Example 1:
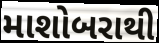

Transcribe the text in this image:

માશોબરાથી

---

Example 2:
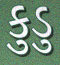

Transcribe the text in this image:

કુડુ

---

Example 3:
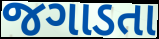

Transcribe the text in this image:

જગાડતા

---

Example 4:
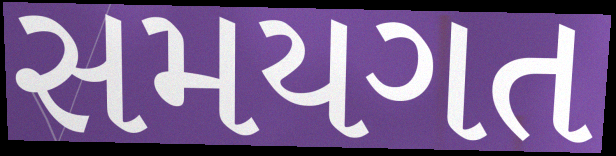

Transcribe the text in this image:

સમયગત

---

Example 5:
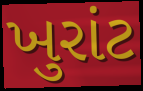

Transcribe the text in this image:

ખુરાંટ